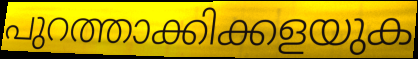
പുറത്താക്കിക്കളയുക